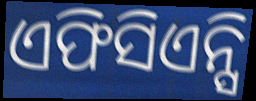
ଏଫିସିଏନ୍ସି